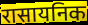
रासायनिक